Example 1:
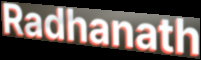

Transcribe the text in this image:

Radhanath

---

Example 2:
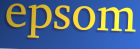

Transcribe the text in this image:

epsom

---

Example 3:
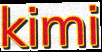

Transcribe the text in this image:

kimi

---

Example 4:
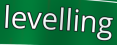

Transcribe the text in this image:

levelling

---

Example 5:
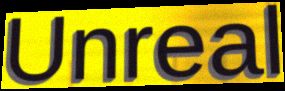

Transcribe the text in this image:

Unreal